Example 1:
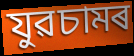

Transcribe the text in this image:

যুৱচামৰ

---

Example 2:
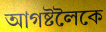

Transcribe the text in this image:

আগষ্টলৈকে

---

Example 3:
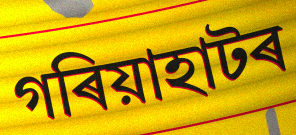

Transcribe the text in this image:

গৰিয়াহাটৰ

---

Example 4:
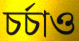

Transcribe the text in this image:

চৰ্চাও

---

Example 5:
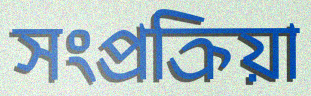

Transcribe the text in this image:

সংপ্ৰক্ৰিয়া